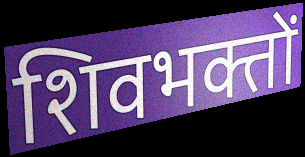
शिवभक्तों